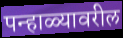
पन्हाळ्यावरील